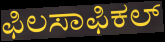
ಫಿಲಸಾಫಿಕಲ್